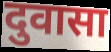
दुवासा